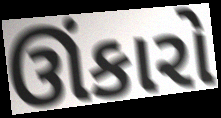
ઊંકારો